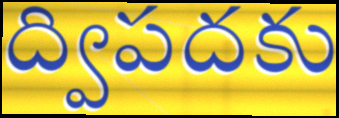
ద్విపదకు